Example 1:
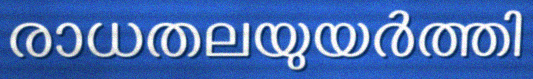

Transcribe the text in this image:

രാധതലയുയർത്തി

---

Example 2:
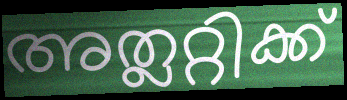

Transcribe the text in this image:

അത്ലറ്റിക്ക്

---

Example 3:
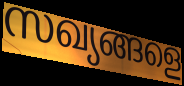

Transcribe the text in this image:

സഖ്യങ്ങളെ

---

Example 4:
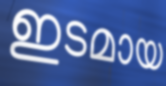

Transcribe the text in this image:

ഇടമായ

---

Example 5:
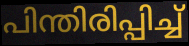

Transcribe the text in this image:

പിന്തിരിപ്പിച്ച്